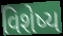
વિશેષ્ય